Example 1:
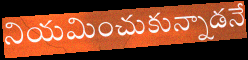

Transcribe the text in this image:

నియమించుకున్నాడనే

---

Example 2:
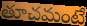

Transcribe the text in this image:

తూచమంటే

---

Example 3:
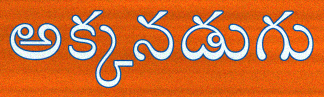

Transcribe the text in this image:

అక్కనడుగు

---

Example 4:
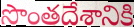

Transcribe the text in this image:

సొంతదేశానికి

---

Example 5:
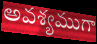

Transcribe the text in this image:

అవశ్యముగా